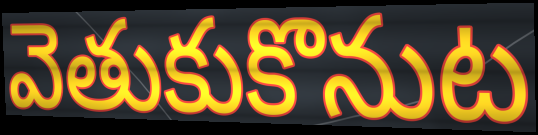
వెతుకుకొనుట